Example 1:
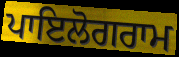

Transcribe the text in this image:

ਪਾਇਲੋਗਰਾਮ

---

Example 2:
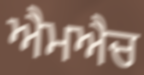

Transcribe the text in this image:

ਐਮਐਚ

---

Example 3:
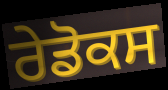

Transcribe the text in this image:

ਰੇਡੋਕਸ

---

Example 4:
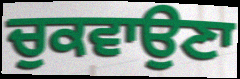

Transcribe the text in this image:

ਚੁਕਵਾਉਣਾ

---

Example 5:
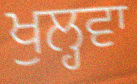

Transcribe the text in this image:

ਖੁਲ੍ਹਵਾ